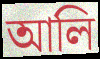
আলি